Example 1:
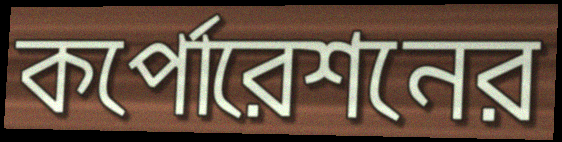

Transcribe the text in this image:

কর্পোরেশনের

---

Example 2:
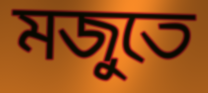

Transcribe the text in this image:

মজুতে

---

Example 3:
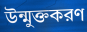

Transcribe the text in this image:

উন্মুক্তকরণ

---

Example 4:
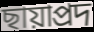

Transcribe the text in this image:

ছায়াপ্রদ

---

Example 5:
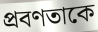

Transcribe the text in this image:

প্রবণতাকে